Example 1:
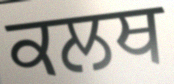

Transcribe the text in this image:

ਕਲਥ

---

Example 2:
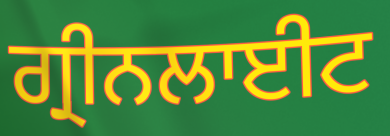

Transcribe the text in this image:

ਗ੍ਰੀਨਲਾਈਟ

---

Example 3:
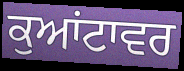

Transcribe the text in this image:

ਕੁਆਂਟਾਵਰ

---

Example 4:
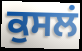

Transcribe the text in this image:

ਕੁਸਲਂ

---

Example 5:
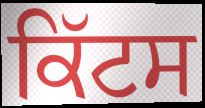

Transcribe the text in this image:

ਕਿੱਟਸ